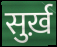
सुर्ख़